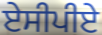
ਏਸੀਪੀਏ